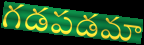
గడపడమా